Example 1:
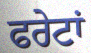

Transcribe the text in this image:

ਫਰੇਟਾਂ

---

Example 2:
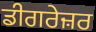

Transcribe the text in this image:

ਡੀਗਰੇਜ਼ਰ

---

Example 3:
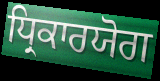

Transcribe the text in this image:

ਧ੍ਰਿਕਾਰਯੋਗ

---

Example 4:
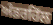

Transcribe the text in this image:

ਅੰਡਰਹਿੱਲ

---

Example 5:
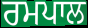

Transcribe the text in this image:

ਰਮਪਾਲ